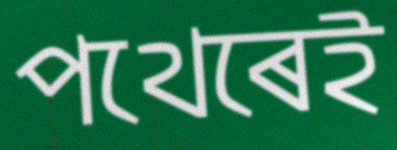
পথেৰেই